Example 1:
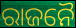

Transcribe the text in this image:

ରାଜନୈ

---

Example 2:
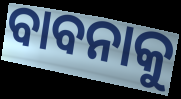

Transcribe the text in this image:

ବାବନାକୁ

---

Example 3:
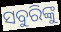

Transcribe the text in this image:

ସବୁରିଙ୍କୁ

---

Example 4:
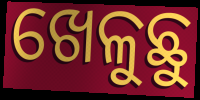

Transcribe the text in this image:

ଖେଳୁଛୁ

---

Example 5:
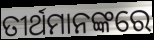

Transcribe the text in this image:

ତୀର୍ଥମାନଙ୍କରେ